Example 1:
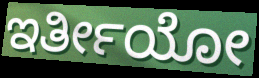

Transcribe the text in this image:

ಇರ್ತೀಯೋ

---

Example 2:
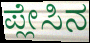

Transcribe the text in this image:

ಪ್ಲೇಸಿನ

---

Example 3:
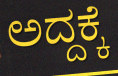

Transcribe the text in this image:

ಅದ್ದಕ್ಕೆ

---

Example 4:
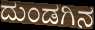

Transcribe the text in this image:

ದುಂಡಗಿನ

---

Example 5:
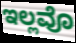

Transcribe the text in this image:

ಇಲ್ಲವೊ